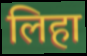
लिहा